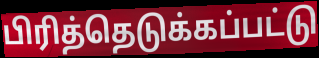
பிரித்தெடுக்கப்பட்டு